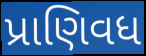
પ્રાણિવધ